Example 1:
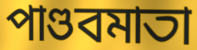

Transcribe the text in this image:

পাণ্ডবমাতা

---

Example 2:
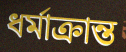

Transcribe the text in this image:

ধর্মাক্রান্ত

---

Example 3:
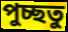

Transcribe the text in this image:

পুচ্ছতু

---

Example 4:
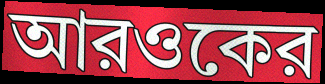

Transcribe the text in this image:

আরওকের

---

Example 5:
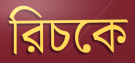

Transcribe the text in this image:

রিচকে